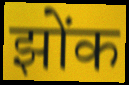
झोंक